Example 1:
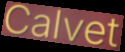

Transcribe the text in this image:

Calvet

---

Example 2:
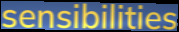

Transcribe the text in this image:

sensibilities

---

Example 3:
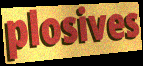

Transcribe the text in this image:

plosives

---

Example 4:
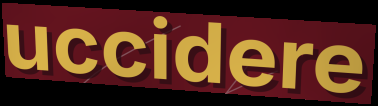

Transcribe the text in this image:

uccidere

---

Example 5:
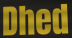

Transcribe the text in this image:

Dhed